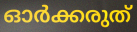
ഓർക്കരുത്